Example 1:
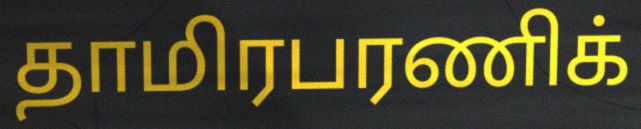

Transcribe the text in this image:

தாமிரபரணிக்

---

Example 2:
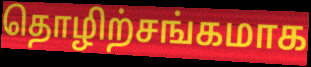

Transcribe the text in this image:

தொழிற்சங்கமாக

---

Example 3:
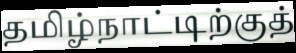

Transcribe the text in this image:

தமிழ்நாட்டிற்குத்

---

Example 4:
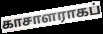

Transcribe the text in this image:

காசாளராகப்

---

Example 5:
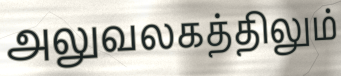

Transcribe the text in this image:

அலுவலகத்திலும்